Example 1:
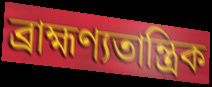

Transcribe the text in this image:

ব্রাহ্মণ্যতান্ত্রিক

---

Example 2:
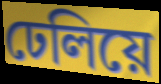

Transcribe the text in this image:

ঢেলিয়ে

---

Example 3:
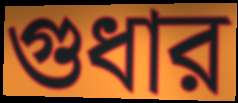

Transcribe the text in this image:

গুধার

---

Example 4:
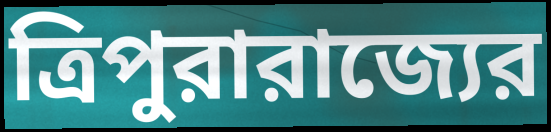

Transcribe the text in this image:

ত্রিপুরারাজ্যের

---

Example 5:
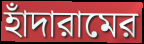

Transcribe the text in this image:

হাঁদারামের